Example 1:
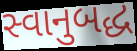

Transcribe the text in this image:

સ્વાનુબદ્ધ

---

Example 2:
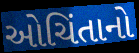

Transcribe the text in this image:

ઓચિંતાનો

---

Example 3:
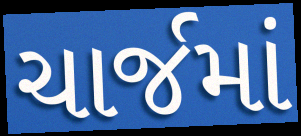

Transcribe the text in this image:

ચાર્જમાં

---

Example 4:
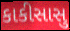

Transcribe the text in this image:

કાકીસાસુ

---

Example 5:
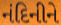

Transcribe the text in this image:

નંદિનીને